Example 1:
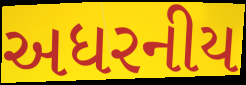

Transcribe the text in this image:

અધરનીય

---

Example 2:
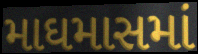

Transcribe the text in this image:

માઘમાસમાં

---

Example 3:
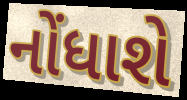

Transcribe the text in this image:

નોંધાશે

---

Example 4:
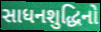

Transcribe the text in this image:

સાધનશુદ્ધિનો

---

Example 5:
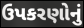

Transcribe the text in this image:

ઉપકરણોનું